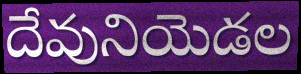
దేవునియెడల